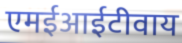
एमईआईटीवाय